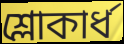
শ্লোকার্ধ